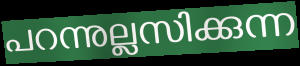
പറന്നുല്ലസിക്കുന്ന